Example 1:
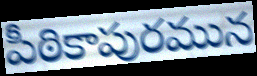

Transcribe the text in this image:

పీఠికాపురమున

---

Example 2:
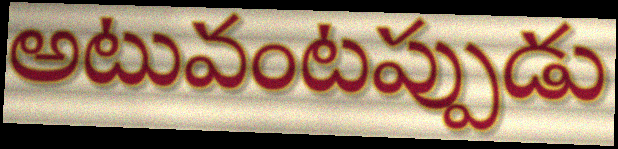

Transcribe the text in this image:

అటువంటప్పుడు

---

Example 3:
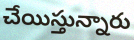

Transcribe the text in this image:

చేయిస్తున్నారు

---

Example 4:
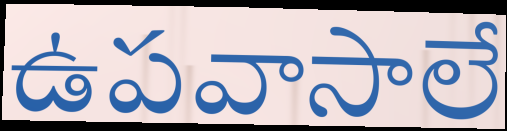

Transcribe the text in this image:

ఉపవాసాలే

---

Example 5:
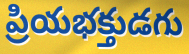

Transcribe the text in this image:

ప్రియభక్తుడగు